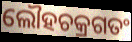
ଲୌହଚକ୍ରଗତଂ